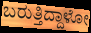
ಬರುತ್ತಿದ್ದಾಳೋ